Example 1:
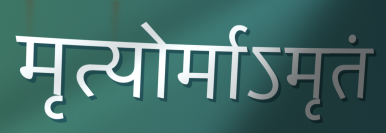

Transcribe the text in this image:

मृत्योर्माऽमृतं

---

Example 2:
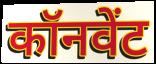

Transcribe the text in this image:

कॉनवेंट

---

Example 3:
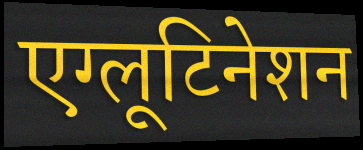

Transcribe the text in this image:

एग्लूटिनेशन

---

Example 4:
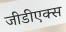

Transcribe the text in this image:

जीडीएक्स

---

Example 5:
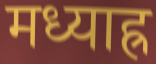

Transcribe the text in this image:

मध्याह्र